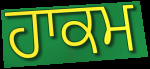
ਹਾਕਮ